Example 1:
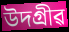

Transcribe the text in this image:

উদগ্ৰীৱ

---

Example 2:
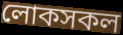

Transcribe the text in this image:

লোকসকল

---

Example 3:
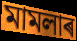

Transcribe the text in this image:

মামলাৰ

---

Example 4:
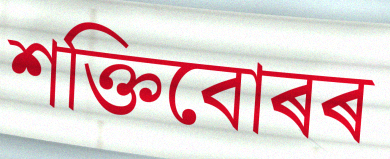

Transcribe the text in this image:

শক্তিবোৰৰ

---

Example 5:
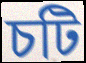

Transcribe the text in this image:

চটি